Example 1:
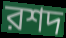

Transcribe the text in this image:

রশদ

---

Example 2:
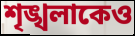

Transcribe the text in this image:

শৃঙ্খলাকেও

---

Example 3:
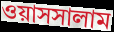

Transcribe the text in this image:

ওয়াসসালাম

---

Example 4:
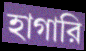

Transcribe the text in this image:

হাগারি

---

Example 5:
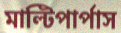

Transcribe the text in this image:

মাল্টিপার্পাস